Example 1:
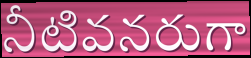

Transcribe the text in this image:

నీటివనరుగా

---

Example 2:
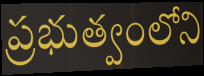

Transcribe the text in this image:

ప్రభుత్వంలోని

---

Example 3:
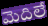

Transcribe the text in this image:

మెదిలే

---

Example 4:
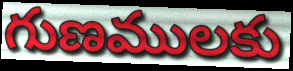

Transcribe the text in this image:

గుణములకు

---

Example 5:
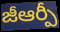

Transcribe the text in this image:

జీఆర్పీ